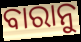
ବାରାନୁ